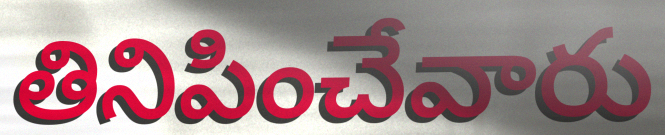
తినిపించేవారు